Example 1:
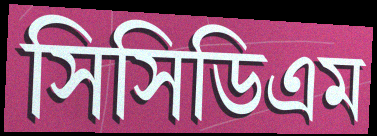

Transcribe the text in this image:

সিসিডিএম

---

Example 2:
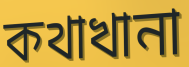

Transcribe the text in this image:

কথাখানা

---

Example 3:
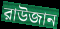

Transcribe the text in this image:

রাউজান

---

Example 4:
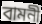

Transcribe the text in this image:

বামনী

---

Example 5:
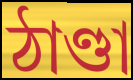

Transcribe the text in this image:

ঠাণ্ডা